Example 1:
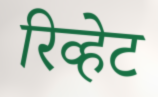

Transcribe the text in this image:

रिव्हेट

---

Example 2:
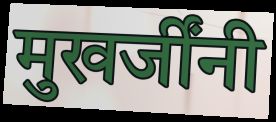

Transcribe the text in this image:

मुखर्जींनी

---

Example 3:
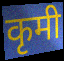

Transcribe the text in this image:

कृमी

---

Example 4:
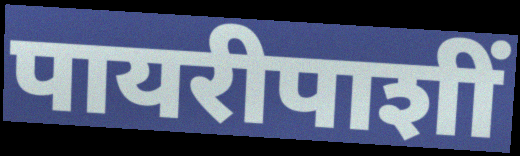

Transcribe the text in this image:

पायरीपाशीं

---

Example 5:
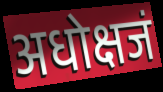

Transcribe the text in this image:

अधोक्षजं